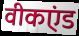
वीकएंड